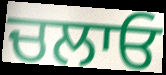
ਚਲਾਓ